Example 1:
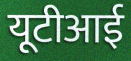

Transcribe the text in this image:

यूटीआई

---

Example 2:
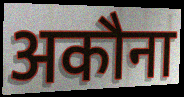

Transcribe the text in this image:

अकौना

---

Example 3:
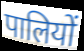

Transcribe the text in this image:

पालियों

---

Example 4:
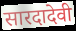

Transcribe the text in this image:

सारदादेवी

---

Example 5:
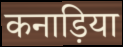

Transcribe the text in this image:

कनाड़िया